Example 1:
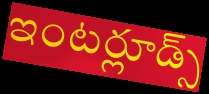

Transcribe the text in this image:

ఇంటర్లూడ్స్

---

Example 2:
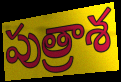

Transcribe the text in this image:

పుత్రాశ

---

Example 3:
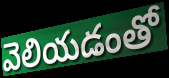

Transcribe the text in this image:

వెలియడంతో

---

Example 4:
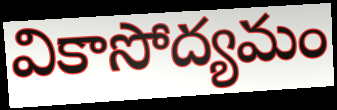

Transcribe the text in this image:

వికాసోద్యమం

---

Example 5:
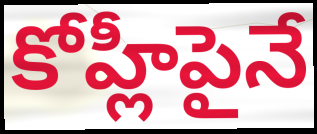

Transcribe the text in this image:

కోహ్లీపైనే